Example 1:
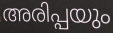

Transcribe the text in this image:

അരിപ്പയും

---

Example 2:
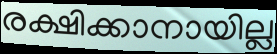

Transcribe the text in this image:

രക്ഷിക്കാനായില്ല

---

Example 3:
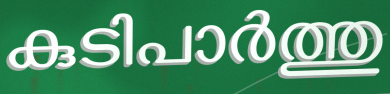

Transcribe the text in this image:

കുടിപാർത്തു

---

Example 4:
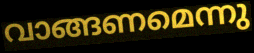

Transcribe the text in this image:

വാങ്ങണമെന്നു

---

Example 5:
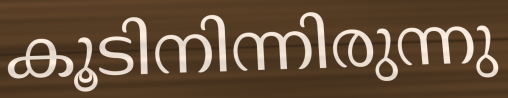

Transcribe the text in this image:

കൂടിനിന്നിരുന്നു